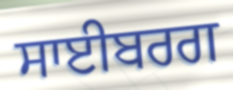
ਸਾਈਬਰਗ